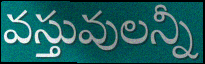
వస్తువులన్నీ